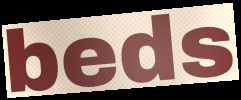
beds